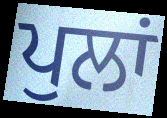
ਪੁਲਾਂ